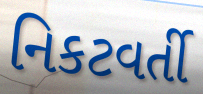
નિકટવર્તી